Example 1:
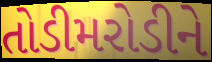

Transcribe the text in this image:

તોડીમરોડીને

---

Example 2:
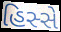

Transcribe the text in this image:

હિસ્સે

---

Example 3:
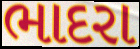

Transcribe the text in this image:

ભાદરા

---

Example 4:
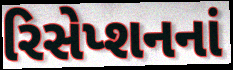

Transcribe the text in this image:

રિસેપ્શનનાં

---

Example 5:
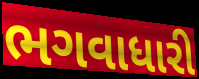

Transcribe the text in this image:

ભગવાધારી